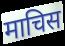
माचिस